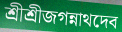
শ্রীশ্রীজগন্নাথদেব